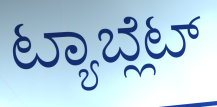
ಟ್ಯಾಬ್ಲೆಟ್